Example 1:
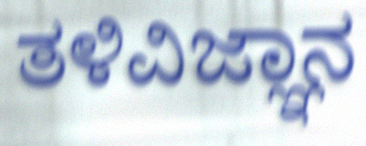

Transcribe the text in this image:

ತಳಿವಿಜ್ಞಾನ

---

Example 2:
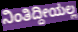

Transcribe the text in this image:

ನಿಂತಿದ್ದೀಯಲ್ಲ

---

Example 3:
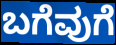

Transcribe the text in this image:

ಬಗೆವುಗೆ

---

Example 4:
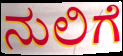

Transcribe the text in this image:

ನುಲಿಗೆ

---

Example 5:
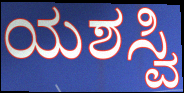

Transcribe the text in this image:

ಯಶಸ್ವಿ